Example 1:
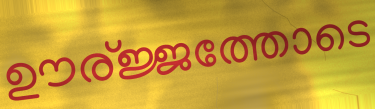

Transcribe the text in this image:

ഊര്ജ്ജത്തോടെ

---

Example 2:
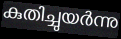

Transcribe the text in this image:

കുതിച്ചുയർന്നു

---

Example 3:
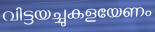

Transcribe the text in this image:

വിട്ടയച്ചുകളയേണം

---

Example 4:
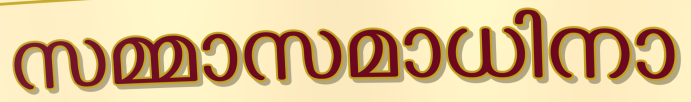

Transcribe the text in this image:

സമ്മാസമാധിനാ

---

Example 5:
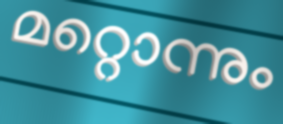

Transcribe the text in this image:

മറ്റൊന്നും